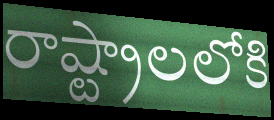
రాష్ట్రాలలోకి